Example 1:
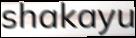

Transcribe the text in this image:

shakayu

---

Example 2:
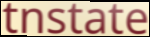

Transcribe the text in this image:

tnstate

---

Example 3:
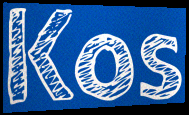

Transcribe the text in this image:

Kos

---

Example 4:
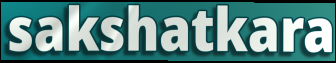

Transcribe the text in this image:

sakshatkara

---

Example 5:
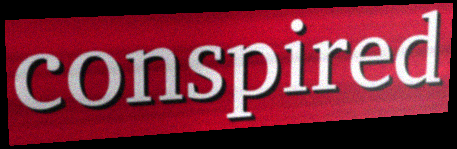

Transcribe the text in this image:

conspired